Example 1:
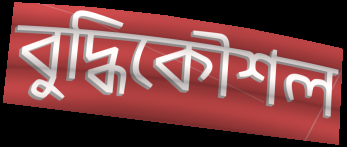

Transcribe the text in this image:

বুদ্ধিকৌশল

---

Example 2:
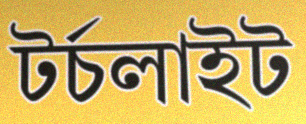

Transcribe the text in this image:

টর্চলাইট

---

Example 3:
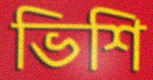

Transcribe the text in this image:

ভিশি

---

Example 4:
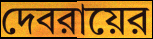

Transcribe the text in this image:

দেবরায়ের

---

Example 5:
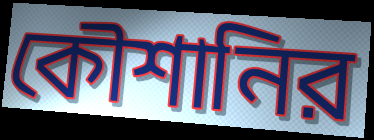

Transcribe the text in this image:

কৌশানির